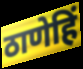
ठाणेहिं